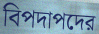
বিপদাপদের